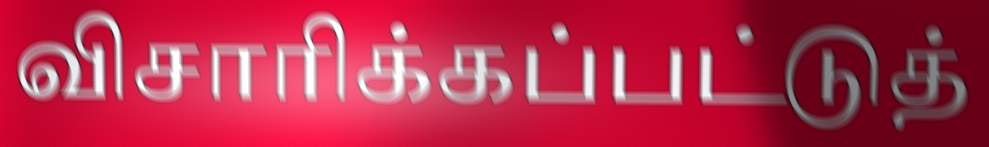
விசாரிக்கப்பட்டுத்